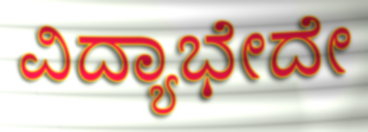
ವಿದ್ಯಾಭೇದೇ